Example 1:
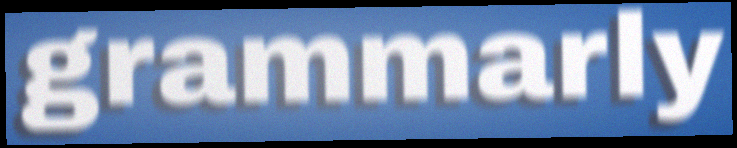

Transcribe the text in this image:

grammarly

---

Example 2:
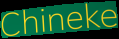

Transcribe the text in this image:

Chineke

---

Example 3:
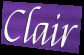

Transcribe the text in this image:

Clair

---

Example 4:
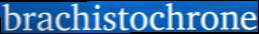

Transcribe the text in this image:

brachistochrone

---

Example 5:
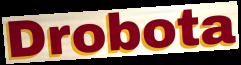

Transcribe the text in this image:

Drobota